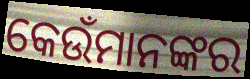
କେଉଁମାନଙ୍କର